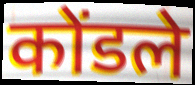
कोंडले